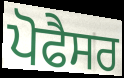
ਪੋਫੈਸਰ